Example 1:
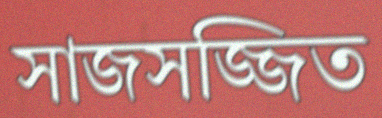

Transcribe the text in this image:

সাজসজ্জিত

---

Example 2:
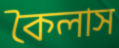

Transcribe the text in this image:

কৈলাস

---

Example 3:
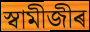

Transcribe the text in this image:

স্বামীজীৰ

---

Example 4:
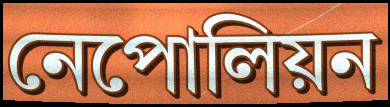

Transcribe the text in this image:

নেপোলিয়ন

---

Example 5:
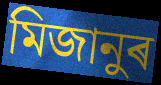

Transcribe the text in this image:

মিজানুৰ